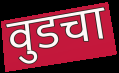
वुडचा